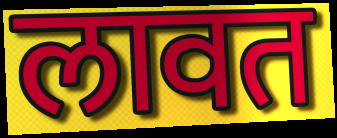
लावत